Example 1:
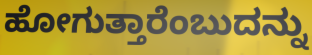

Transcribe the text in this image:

ಹೋಗುತ್ತಾರೆಂಬುದನ್ನು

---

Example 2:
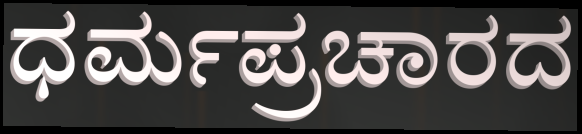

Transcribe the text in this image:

ಧರ್ಮಪ್ರಚಾರದ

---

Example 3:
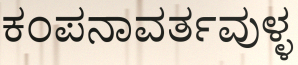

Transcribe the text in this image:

ಕಂಪನಾವರ್ತವುಳ್ಳ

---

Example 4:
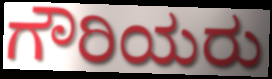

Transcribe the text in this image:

ಗೌರಿಯರು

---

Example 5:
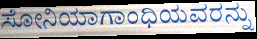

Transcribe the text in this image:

ಸೋನಿಯಾಗಾಂಧಿಯವರನ್ನು